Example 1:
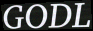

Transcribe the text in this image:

GODL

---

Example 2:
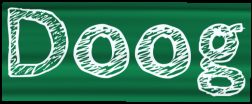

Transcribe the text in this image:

Doog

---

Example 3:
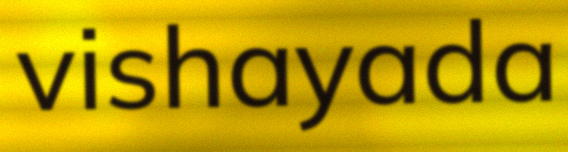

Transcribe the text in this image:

vishayada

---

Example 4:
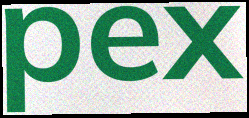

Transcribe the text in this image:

pex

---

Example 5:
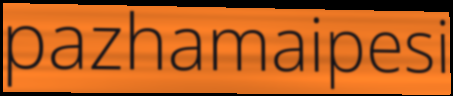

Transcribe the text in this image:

pazhamaipesi